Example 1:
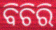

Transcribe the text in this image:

ବିଚିରି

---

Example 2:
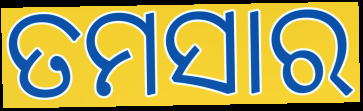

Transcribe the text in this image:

ତମସାର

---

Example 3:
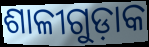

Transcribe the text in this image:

ଶାଳୀଗୁଡ଼ାକ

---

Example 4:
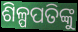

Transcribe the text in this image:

ଶିଳ୍ପପତିଙ୍କୁ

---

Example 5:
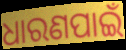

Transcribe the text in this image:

ଧାରଣପାଇଁ